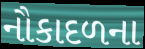
નૌકાદળના